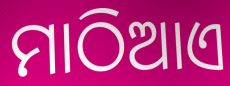
ମାଠିଆଏ